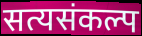
सत्यसंकल्प